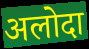
अलोदा